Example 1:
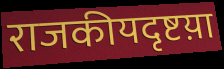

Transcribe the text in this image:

राजकीयदृष्टय़ा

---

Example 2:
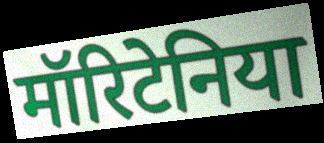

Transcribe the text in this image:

मॉरिटेनिया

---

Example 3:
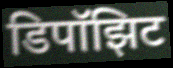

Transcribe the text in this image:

डिपॉझिट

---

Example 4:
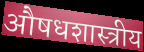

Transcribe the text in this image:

औषधशास्त्रीय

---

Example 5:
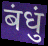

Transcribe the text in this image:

बंधुं